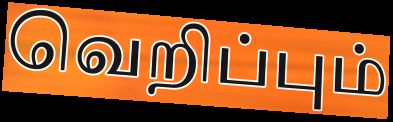
வெறிப்பும்